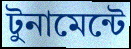
টুনামেন্টে